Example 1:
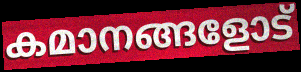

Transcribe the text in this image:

കമാനങ്ങളോട്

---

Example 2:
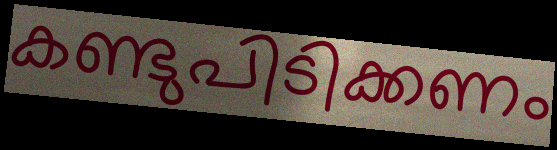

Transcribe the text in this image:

കണ്ടുപിടിക്കണം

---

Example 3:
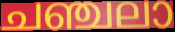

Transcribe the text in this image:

ചഞ്ചലാ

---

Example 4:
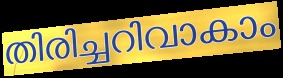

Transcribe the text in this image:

തിരിച്ചറിവാകാം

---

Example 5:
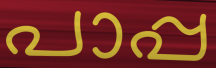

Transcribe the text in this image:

പാപ്പ